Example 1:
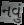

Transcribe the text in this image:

નવું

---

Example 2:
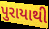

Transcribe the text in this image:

પુરાયાથી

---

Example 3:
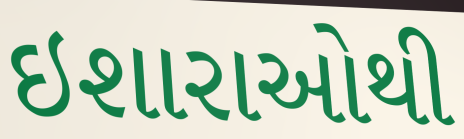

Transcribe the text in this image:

ઇશારાઓથી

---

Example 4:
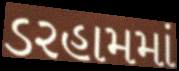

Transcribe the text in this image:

ડરહામમાં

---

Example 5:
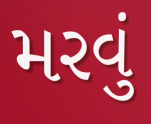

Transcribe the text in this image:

મરવું